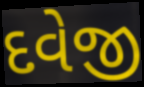
દવેજી